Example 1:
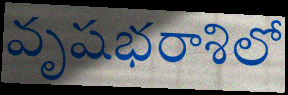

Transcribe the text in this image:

వృషభరాశిలో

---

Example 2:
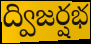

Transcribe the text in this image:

ద్విజర్షభ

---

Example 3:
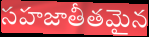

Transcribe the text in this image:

సహజాతీతమైన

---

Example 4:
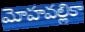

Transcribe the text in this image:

మోహవల్లికా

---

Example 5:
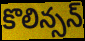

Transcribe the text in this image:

కొలిన్సన్